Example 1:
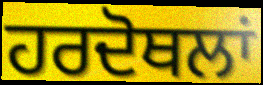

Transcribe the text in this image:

ਹਰਦੋਥਲਾਂ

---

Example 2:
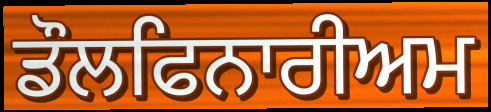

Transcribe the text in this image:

ਡੌਲਫਿਨਾਰੀਅਮ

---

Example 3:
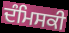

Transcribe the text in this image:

ਦੰਮਿਸਕੀ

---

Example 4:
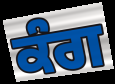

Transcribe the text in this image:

ਕੰਗ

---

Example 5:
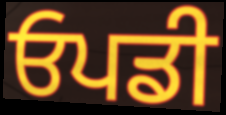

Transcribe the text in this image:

ਓਪਡੀ